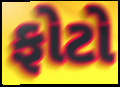
ફોટો